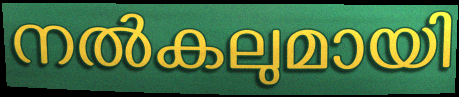
നൽകലുമായി